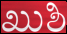
ಖುಶಿ